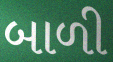
બાળી